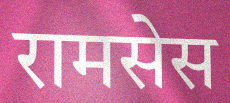
रामसेस